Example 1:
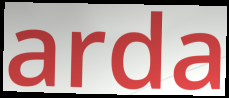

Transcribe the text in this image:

arda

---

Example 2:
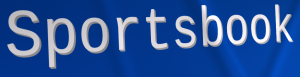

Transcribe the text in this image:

Sportsbook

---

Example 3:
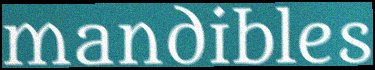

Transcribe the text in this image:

mandibles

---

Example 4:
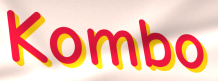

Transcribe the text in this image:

Kombo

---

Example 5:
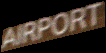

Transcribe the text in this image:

AIRPORT